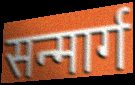
सन्मार्ग